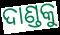
ଦାଣ୍ଡକୁ